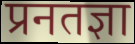
प्रनतज्ञा